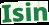
Isin